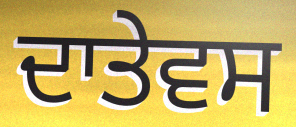
ਦਾਤੇਵਸ